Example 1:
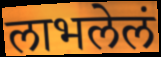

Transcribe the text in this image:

लाभलेलं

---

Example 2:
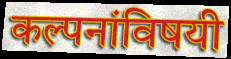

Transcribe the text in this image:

कल्पनांविषयी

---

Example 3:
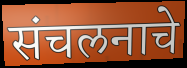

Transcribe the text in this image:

संचलनाचे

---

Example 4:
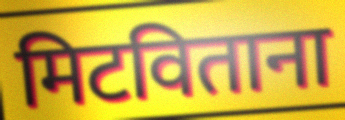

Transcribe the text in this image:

मिटविताना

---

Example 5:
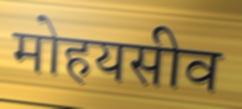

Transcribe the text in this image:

मोहयसीव